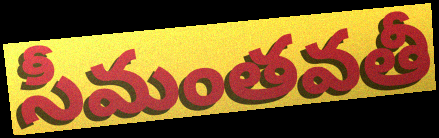
సీమంతవతీ